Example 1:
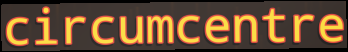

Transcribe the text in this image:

circumcentre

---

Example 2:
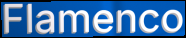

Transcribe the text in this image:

Flamenco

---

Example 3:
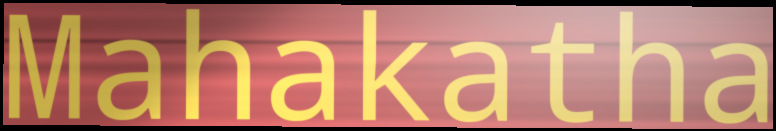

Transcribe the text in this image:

Mahakatha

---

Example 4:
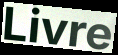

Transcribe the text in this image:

Livre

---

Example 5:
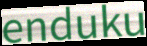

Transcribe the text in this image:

enduku